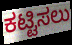
ಕಟ್ಟಿಸಲು